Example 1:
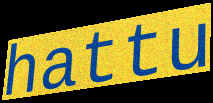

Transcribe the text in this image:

hattu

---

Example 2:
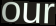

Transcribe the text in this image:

our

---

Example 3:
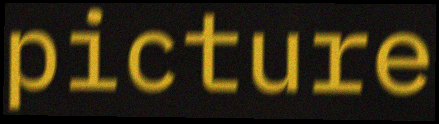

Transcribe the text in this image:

picture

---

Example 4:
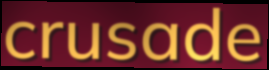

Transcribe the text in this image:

crusade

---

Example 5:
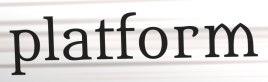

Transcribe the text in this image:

platform